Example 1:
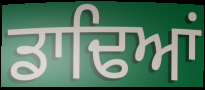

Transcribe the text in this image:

ਡਾਢਿਆਂ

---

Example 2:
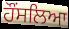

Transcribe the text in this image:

ਹੌਂਸਲਿਆ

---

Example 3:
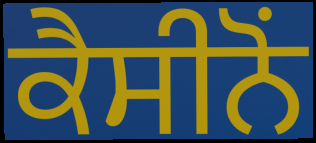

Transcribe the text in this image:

ਕੈਸੀਨੋਂ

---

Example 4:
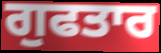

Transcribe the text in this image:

ਗੁਫਤਾਰ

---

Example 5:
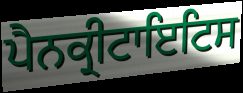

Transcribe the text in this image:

ਪੈਨਕ੍ਰੀਟਾਇਟਿਸ